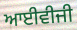
ਆਈਵੀਜੀ